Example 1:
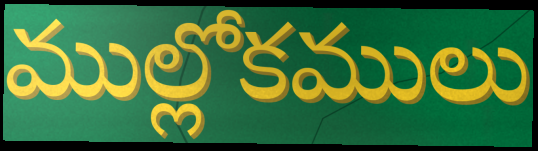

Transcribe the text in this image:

ముల్లోకములు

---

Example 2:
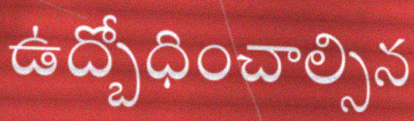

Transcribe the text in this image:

ఉద్బోధించాల్సిన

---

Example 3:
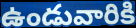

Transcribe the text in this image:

ఉండువారికి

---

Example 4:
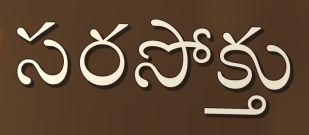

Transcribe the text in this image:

సరసోక్తు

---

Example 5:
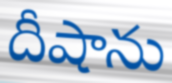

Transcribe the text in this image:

దీషాను